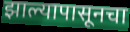
झाल्यापासूनचा